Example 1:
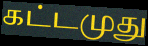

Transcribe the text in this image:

கட்டமுது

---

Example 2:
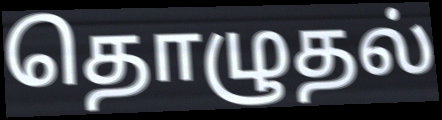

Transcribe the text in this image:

தொழுதல்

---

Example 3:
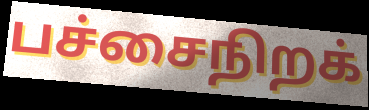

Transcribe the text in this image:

பச்சைநிறக்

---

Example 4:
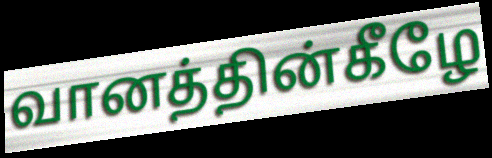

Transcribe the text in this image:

வானத்தின்கீழே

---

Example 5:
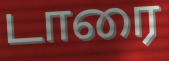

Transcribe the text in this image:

டாரை